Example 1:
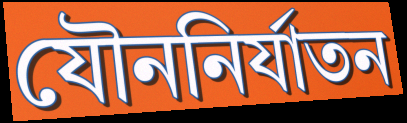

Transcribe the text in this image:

যৌননির্যাতন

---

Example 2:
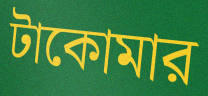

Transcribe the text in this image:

টাকোমার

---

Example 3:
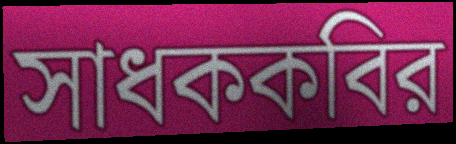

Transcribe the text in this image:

সাধককবির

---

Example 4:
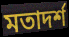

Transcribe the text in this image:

মতাদর্শ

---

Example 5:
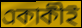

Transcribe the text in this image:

একাকীই